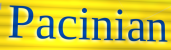
Pacinian